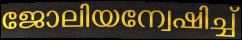
ജോലിയന്വേഷിച്ച്